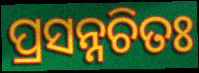
ପ୍ରସନ୍ନଚିତଃ